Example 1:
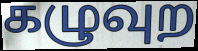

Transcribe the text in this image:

கழுவுற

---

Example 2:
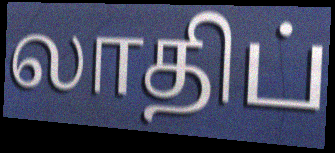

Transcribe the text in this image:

லாதிப்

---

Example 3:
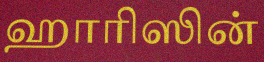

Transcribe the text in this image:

ஹாரிஸின்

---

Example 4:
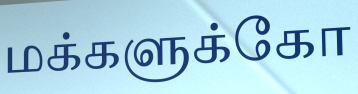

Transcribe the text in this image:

மக்களுக்கோ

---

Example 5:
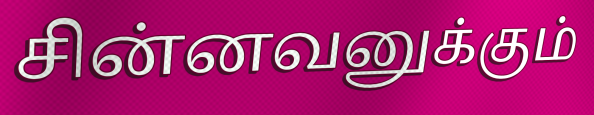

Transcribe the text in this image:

சின்னவனுக்கும்